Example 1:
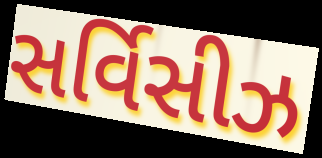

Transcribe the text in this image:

સર્વિસીઝ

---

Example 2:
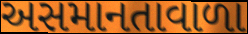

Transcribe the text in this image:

અસમાનતાવાળા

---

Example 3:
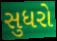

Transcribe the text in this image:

સુધરો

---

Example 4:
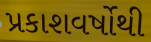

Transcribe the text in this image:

પ્રકાશવર્ષોથી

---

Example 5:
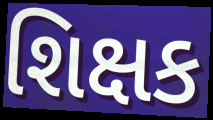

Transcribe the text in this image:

શિક્ષક